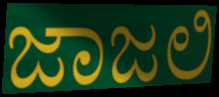
ಜಾಜಲಿ